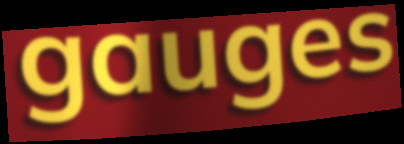
gauges